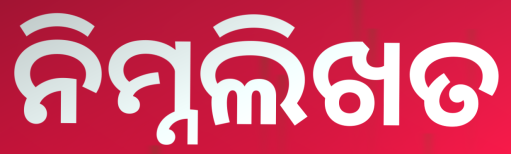
ନିମ୍ନଲିଖତ